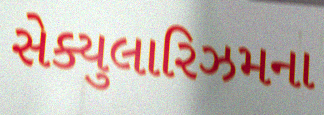
સેક્યુલારિઝમના